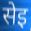
सेइ